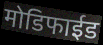
मोडिफाईड